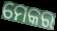
ମେକର